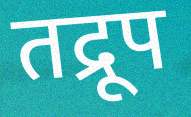
तद्रूप